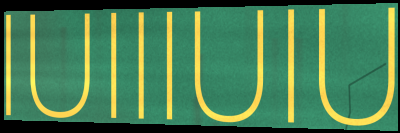
IUIIIUIU